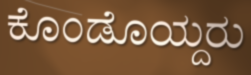
ಕೊಂಡೊಯ್ದರು